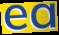
ea